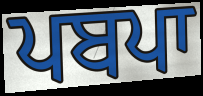
ਪਬਪਾ